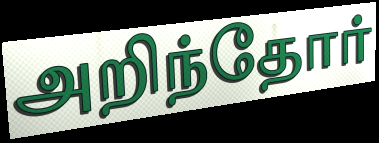
அறிந்தோர்